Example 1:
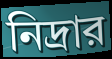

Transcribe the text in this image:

নিদ্রার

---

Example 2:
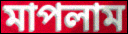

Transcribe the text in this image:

মাপলাম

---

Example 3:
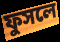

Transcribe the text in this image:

ফুসলে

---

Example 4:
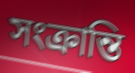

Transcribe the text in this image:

সংক্রান্তি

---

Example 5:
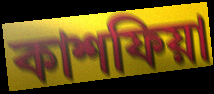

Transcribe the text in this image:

কাশফিয়া